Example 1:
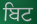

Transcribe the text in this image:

ਬਿਟ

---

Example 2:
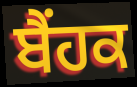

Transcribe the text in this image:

ਬੈਂਹਕ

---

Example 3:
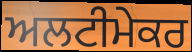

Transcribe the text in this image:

ਅਲਟੀਮੇਕਰ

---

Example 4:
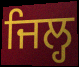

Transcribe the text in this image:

ਜਿਲ੍ਹ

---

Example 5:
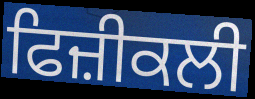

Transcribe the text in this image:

ਫਿਜ਼ੀਕਲੀ